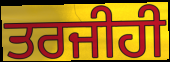
ਤਰਜੀਹੀ